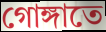
গোঙ্গাতে